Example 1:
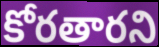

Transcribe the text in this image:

కోరతారని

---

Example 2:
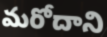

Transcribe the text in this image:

మరోదాని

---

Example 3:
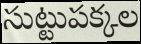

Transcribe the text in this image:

సుట్టుపక్కల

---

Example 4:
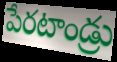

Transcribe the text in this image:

పేరటాండ్రు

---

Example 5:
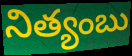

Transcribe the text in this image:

నిత్యంబు